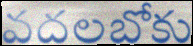
వదలబోకు